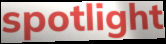
spotlight